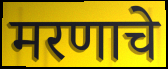
मरणाचे